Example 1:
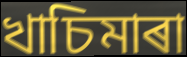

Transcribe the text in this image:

খাচিমাৰা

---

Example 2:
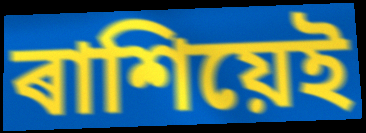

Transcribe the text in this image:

ৰাশিয়েই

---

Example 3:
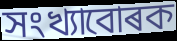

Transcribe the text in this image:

সংখ্যাবোৰক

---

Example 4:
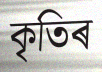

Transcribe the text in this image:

কৃতিৰ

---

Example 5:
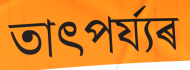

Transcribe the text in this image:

তাৎপৰ্য্যৰ